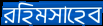
রহিমসাহেব